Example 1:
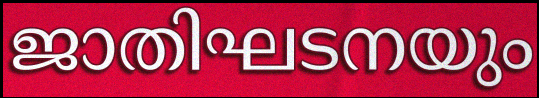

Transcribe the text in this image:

ജാതിഘടനയും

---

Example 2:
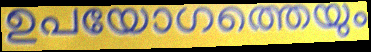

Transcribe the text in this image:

ഉപയോഗത്തെയും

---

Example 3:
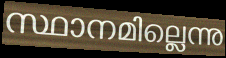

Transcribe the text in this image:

സ്ഥാനമില്ലെന്നു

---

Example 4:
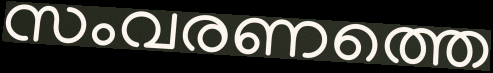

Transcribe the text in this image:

സംവരണത്തെ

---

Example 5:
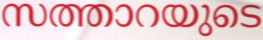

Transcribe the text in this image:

സത്താറയുടെ